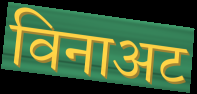
विनाअट